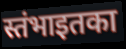
स्तंभाइतका